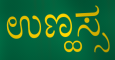
ಉಣ್ಹಸ್ಸ